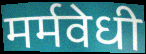
मर्मवेधी